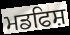
ਮਡਫਿਸ਼